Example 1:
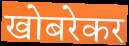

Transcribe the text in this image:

खोबरेकर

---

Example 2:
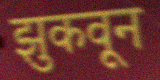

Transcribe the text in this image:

झुकवून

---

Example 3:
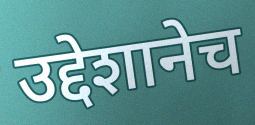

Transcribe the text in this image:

उद्देशानेच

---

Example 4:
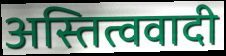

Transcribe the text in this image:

अस्तित्ववादी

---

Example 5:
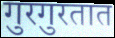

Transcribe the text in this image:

गुरगुरतात